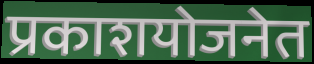
प्रकाशयोजनेत